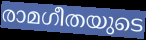
രാമഗീതയുടെ